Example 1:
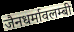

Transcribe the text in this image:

जैनधर्मावलम्बी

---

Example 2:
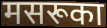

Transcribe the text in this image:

मसरूका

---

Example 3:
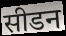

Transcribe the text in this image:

सीडन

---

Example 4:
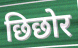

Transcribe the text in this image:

छिछोर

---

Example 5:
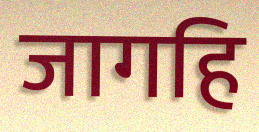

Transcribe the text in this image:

जागहि